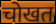
चोखत